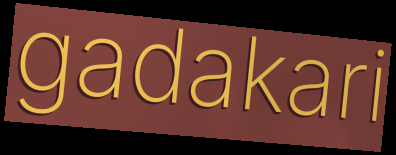
gadakari